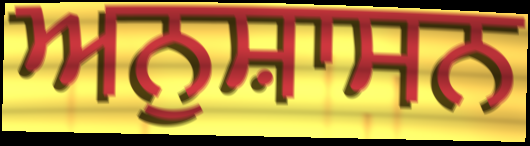
ਅਨੁਸ਼ਾਸਨ